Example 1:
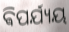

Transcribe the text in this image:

ଵିପର୍ଯ୍ୟୟ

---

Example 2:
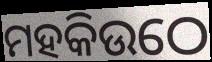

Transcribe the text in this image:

ମହକିଉଠେ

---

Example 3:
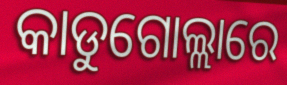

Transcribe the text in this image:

କାଡୁଗୋଲ୍ଲାରେ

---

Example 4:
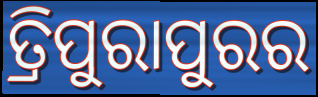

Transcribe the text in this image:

ତ୍ରିପୁରାପୁରର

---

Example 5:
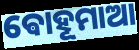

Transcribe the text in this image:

ଵୋହୂମାଆ